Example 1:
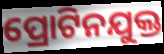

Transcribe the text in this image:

ପ୍ରୋଟିନଯୁକ୍ତ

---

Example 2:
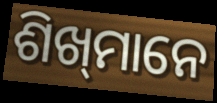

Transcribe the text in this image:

ଶିଖ୍‌ମାନେ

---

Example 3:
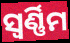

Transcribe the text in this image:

ସ୍ୱର୍ଣ୍ଣିମ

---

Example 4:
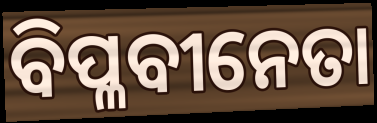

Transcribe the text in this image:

ବିପ୍ଳବୀନେତା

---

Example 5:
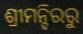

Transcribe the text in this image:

ଶ୍ରୀମନ୍ଦିରରୁ